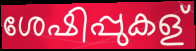
ശേഷിപ്പുകള്